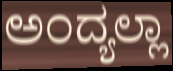
ಅಂದ್ಯಲ್ಲಾ